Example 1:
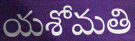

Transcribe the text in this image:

యశోమతి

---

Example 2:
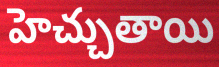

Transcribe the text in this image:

హెచ్చుతాయి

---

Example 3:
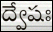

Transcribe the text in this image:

ద్వేషః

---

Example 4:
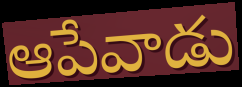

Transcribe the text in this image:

ఆపేవాడు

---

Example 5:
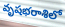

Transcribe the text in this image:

వృషభరాశిలో